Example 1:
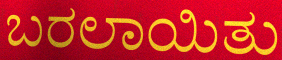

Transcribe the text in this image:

ಬರಲಾಯಿತು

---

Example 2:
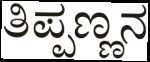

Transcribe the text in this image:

ತಿಪ್ಪಣ್ಣನ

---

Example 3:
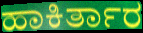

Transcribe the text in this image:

ಹಾಕಿರ್ತಾರ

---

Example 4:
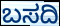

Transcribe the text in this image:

ಬಸದಿ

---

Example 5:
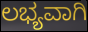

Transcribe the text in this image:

ಲಭ್ಯವಾಗಿ